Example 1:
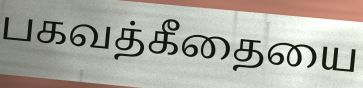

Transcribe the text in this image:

பகவத்கீதையை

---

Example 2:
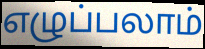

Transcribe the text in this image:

எழுப்பலாம்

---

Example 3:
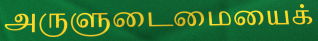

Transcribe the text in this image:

அருளுடைமையைக்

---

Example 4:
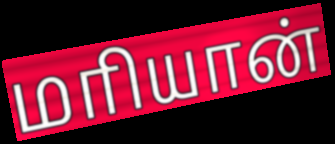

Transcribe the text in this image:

மரியான்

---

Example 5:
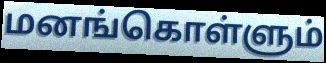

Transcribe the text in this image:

மனங்கொள்ளும்